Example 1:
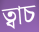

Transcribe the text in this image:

ত্বাচ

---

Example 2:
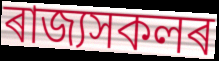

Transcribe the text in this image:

ৰাজ্যসকলৰ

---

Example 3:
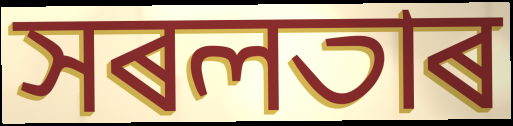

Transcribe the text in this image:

সৰলতাৰ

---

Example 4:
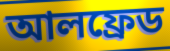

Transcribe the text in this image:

আলফ্ৰেড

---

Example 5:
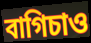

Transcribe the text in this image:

বাগিচাও